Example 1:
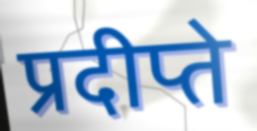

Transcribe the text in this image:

प्रदीप्ते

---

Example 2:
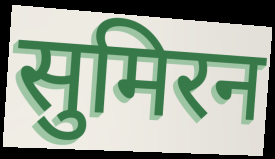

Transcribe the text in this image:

सुमिरन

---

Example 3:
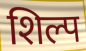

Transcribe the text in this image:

शिल्‍प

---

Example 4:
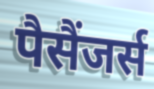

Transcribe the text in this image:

पैसैंजर्स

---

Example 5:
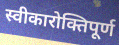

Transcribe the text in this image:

स्वीकारोक्तिपूर्ण